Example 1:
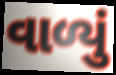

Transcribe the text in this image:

વાળ્યું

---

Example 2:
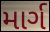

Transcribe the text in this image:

માર્ગ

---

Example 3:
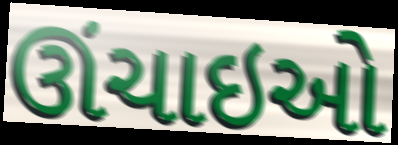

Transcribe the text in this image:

ઊંચાઇઓ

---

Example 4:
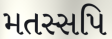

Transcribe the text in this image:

મતસ્સપિ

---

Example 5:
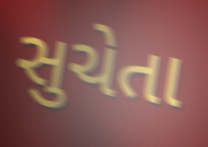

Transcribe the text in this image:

સુચેતા